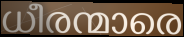
ധീരന്മാരെ